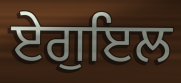
ਏਗੁਇਲ